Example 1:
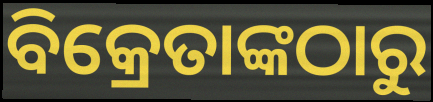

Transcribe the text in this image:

ବିକ୍ରେତାଙ୍କଠାରୁ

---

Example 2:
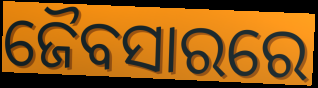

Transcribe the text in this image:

ଜୈବସାରରେ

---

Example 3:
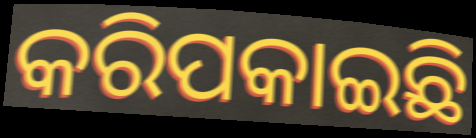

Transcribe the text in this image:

କରିପକାଇଛି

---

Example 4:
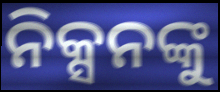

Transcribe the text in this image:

ନିକ୍ସନଙ୍କୁ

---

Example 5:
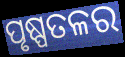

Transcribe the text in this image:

ପୃଷ୍ପତଳର